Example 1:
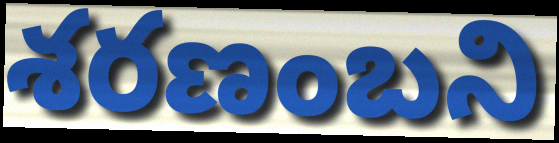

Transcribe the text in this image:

శరణంబని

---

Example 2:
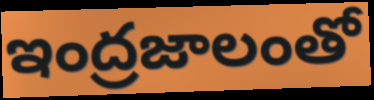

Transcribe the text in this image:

ఇంద్రజాలంతో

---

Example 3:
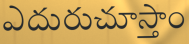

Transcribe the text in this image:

ఎదురుచూస్తాం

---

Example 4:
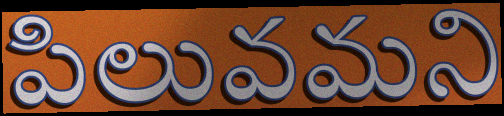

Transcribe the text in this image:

పిలువమని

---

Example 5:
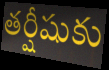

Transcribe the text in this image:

తర్షీషుకు